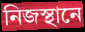
নিজস্থানে